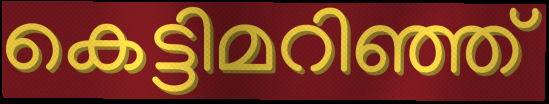
കെട്ടിമറിഞ്ഞ്